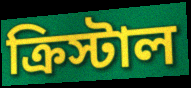
ক্রিস্টাল